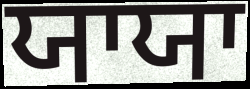
ਯਾਯਾ